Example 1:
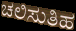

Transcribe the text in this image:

ಚಲಿಸುತಿಹ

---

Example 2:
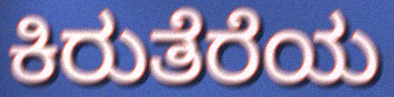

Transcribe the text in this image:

ಕಿರುತೆರೆಯ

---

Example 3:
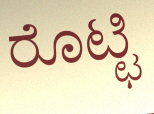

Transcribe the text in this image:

ರೊಟ್ಟಿ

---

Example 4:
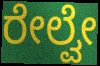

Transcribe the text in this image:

ರೇಲ್ವೇ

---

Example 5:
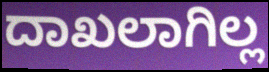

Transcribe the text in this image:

ದಾಖಲಾಗಿಲ್ಲ